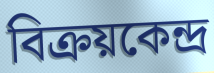
বিক্রয়কেন্দ্র